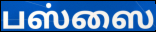
பஸ்ஸை